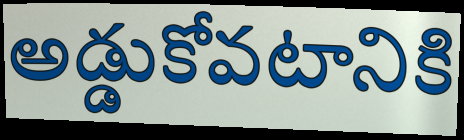
అడ్డుకోవటానికి